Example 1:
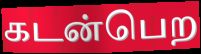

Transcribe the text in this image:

கடன்பெற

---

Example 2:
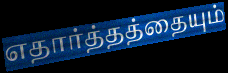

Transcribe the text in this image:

எதார்த்தத்தையும்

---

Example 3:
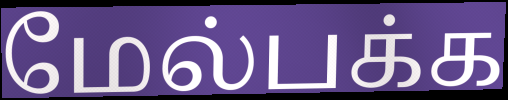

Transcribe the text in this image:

மேல்பக்க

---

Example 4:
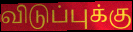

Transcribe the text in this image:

விடுப்புக்கு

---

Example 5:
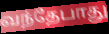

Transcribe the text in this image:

வந்தேபாது